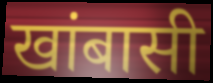
खांबासी